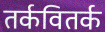
तर्कवितर्क